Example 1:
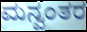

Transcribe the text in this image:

ಮನ್ವಂತರ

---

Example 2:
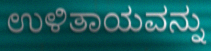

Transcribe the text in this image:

ಉಳಿತಾಯವನ್ನು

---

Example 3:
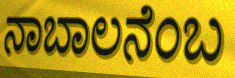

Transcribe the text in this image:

ನಾಬಾಲನೆಂಬ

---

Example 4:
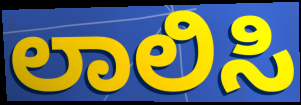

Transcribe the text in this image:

ಲಾಲಿಸಿ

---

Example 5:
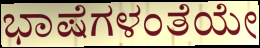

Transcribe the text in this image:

ಭಾಷೆಗಳಂತೆಯೇ